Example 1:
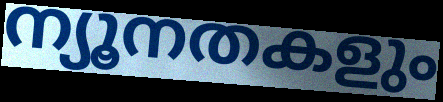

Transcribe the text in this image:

ന്യൂനതകളും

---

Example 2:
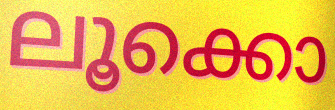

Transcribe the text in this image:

ലൂക്കൊ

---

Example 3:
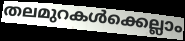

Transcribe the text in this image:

തലമുറകൾക്കെല്ലാം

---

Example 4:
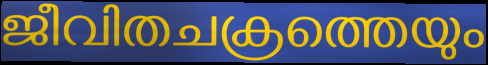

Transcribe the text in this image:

ജീവിതചക്രത്തെയും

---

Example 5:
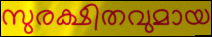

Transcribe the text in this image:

സുരക്ഷിതവുമായ